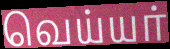
வெய்யர்